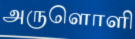
அருளொளி